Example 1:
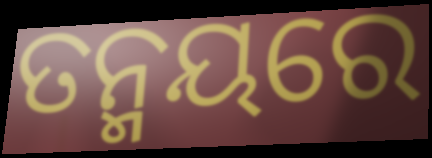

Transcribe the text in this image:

ତନ୍ମୟରେ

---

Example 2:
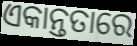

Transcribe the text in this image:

ଏକାନ୍ତତାରେ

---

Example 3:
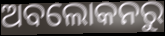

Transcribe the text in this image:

ଅବଲୋକନରୁ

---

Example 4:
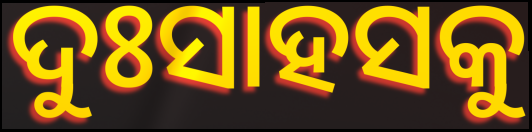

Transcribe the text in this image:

ଦୁଃସାହସକୁ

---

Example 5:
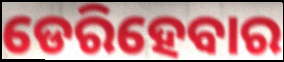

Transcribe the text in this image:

ଡେରିହେବାର